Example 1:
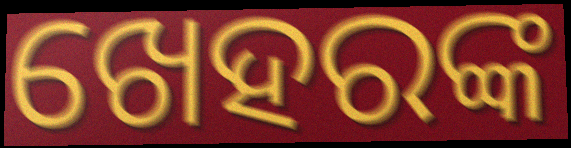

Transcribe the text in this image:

ଖେହରଙ୍କ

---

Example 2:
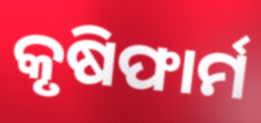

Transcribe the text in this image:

କୃଷିଫାର୍ମ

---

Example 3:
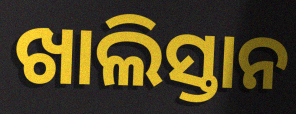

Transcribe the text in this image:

ଖାଲିସ୍ତାନ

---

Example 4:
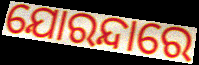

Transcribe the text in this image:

ଯୋରନ୍ଦାରେ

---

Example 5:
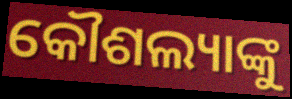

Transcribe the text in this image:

କୌଶଲ୍ୟାଙ୍କୁ